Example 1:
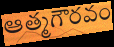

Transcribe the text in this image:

ఆత్మగౌరవం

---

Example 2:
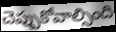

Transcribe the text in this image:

చెప్పుకోవాల్సింది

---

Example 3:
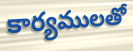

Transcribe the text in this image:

కార్యములతో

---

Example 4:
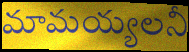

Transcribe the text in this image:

మామయ్యలనీ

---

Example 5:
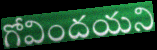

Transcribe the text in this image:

గోవిందయని